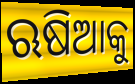
ଋଷିଆକୁ